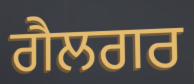
ਗੈਲਗਰ